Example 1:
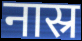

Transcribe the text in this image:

नास्र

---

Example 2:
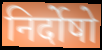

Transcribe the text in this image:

निर्दोषो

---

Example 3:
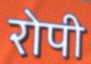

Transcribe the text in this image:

रोपी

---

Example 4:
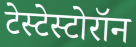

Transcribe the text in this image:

टेस्टेस्टोरॉन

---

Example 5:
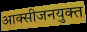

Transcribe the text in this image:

आक्सीजनयुक्त